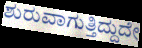
ಶುರುವಾಗುತ್ತಿದ್ದುದೇ